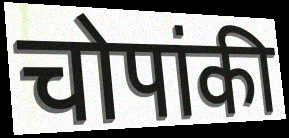
चोपांकी